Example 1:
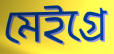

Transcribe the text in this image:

মেইগ্রে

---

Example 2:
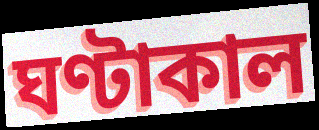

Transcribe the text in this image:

ঘণ্টাকাল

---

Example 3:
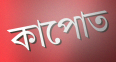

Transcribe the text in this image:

কাপোত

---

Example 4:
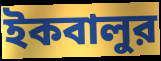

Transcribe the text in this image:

ইকবালুর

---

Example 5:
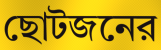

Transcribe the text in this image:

ছোটজনের